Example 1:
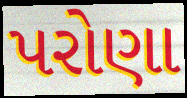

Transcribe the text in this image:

પરોણા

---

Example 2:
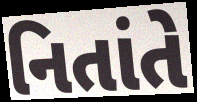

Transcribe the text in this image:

નિતાંતે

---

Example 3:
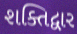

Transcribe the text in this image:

શક્તિદ્વાર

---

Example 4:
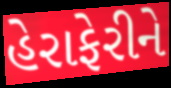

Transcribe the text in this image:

હેરાફેરીને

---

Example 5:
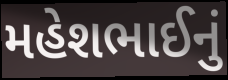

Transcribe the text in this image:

મહેશભાઈનું